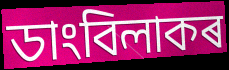
ডাংবিলাকৰ